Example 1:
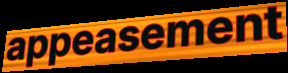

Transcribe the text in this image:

appeasement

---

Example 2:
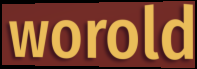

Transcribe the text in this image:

worold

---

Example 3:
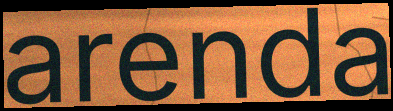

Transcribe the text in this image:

arenda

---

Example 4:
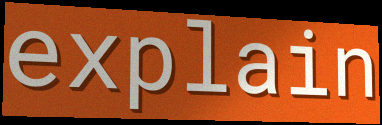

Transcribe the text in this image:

explain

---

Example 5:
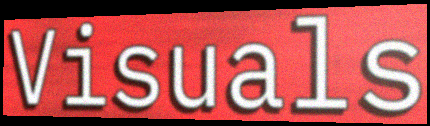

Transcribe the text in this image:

Visuals